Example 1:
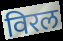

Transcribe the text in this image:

विरल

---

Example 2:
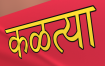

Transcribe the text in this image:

कळत्या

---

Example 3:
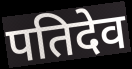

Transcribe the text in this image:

पतिदेव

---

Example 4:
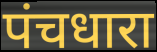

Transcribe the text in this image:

पंचधारा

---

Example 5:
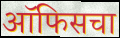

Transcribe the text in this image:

ऑफिसचा